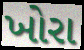
ખોરા